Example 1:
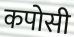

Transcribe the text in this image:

कपोसी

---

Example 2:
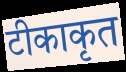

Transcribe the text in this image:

टीकाकृत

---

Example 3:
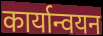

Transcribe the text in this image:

कार्यान्‍वयन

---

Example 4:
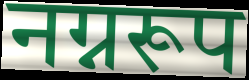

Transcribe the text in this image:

नग्नरूप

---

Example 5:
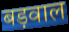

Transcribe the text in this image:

बड़वाल